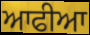
ਆਫੀਆ